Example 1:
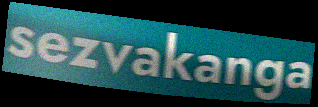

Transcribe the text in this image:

sezvakanga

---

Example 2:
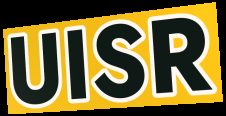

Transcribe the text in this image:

UISR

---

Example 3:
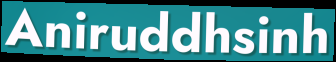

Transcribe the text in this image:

Aniruddhsinh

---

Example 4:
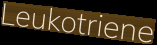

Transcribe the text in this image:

Leukotriene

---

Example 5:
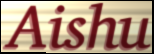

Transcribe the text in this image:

Aishu